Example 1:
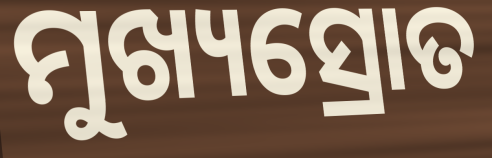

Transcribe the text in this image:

ମୁଖ୍ୟସ୍ରୋତ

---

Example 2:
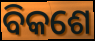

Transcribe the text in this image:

ବିକଶେ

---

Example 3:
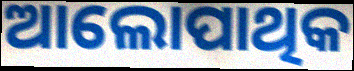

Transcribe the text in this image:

ଆଲୋପାଥିକ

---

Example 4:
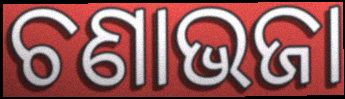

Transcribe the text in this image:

ଚଣାଭଜା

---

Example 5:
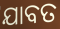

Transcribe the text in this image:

ଯାବତ